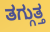
ತಗ್ಗುತ್ತ